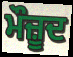
ਮੌਜ਼ੂਦ